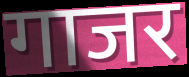
गाजर